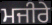
ਮਜੀਰੇ